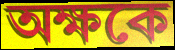
অক্ষকে